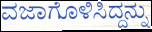
ವಜಾಗೊಳಿಸಿದ್ದನ್ನು